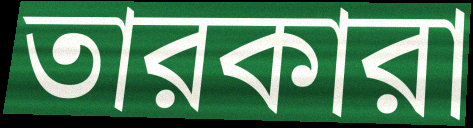
তারকারা